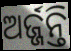
ଅର୍ଜ୍ଜନ୍ତି